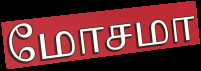
மோசமா